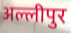
अल्लीपुर